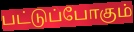
பட்டுப்போகும்